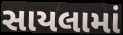
સાયલામાં